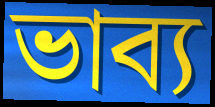
ভাব্য